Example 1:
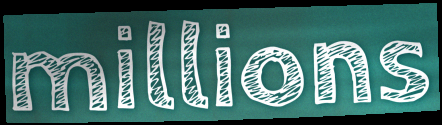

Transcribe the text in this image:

millions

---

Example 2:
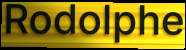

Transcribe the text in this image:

Rodolphe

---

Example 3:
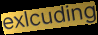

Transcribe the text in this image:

exlcuding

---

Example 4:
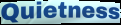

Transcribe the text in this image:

Quietness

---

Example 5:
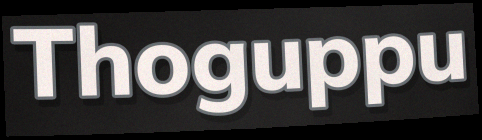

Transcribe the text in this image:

Thoguppu